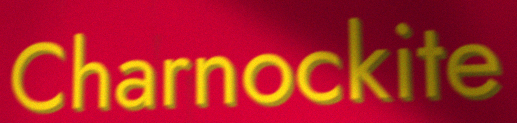
Charnockite